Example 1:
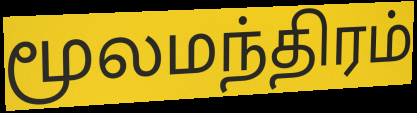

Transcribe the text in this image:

மூலமந்திரம்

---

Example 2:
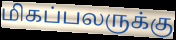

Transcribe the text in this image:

மிகப்பலருக்கு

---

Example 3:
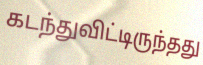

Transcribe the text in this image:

கடந்துவிட்டிருந்தது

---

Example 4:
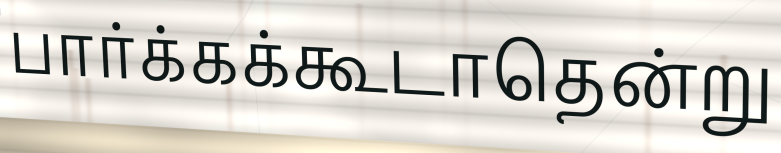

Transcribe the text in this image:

பார்க்கக்கூடாதென்று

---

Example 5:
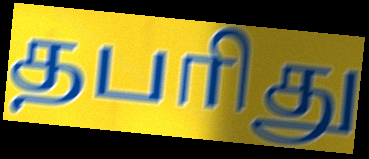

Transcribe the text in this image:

தபரிது